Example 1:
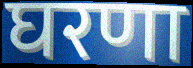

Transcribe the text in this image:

घरणा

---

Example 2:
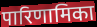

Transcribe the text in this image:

पारिणामिका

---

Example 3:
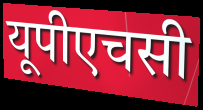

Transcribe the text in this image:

यूपीएचसी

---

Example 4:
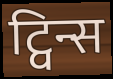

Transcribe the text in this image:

ट्विन्स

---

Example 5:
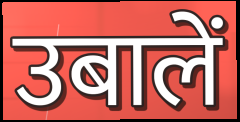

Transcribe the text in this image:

उबालें